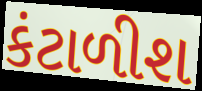
કંટાળીશ